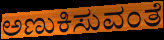
ಅಣುಕಿಸುವಂತೆ